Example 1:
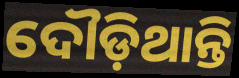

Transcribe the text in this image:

ଦୌଡ଼ିଥାନ୍ତି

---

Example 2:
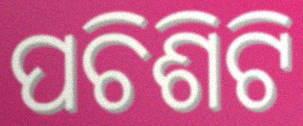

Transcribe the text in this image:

ପଚିଶିଟି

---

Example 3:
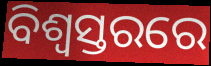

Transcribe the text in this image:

ବିଶ୍ୱସ୍ତରରେ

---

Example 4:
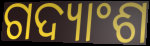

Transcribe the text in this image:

ଗଦ୍ୟାଂଶ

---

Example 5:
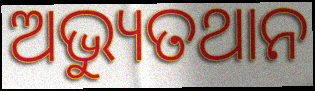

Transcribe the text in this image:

ଅଭ୍ୟୁତଥାନ